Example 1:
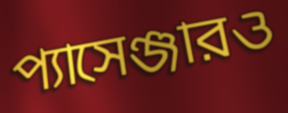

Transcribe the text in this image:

প্যাসেঞ্জারও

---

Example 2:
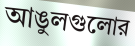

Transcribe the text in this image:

আঙুলগুলোর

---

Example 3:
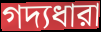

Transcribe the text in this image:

গদ্যধারা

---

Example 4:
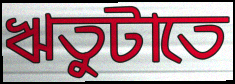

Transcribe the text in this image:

ঋতুটাতে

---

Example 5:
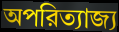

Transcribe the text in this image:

অপরিত্যাজ্য